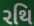
રથિ